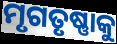
ମୃଗତୃଷ୍ଣାକୁ